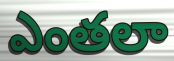
ఎంతలా